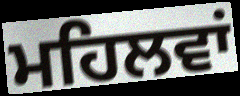
ਮਹਿਲਵਾਂ